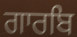
ਗਾਰਬਿ